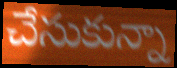
చేసుకున్నా